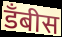
डॅंबीस